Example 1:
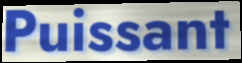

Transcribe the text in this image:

Puissant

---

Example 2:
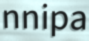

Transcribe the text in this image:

nnipa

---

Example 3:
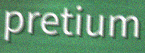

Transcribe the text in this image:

pretium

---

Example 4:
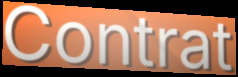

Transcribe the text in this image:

Contrat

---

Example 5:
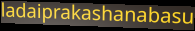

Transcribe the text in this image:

ladaiprakashanabasu